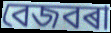
বেজবৰা